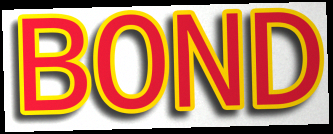
BOND